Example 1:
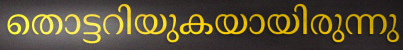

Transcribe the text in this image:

തൊട്ടറിയുകയായിരുന്നു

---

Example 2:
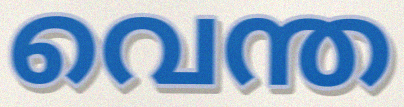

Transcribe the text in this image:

വെന്ത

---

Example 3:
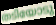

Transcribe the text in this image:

തടിയോടു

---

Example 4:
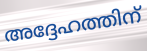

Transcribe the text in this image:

അദ്ദേഹത്തിന്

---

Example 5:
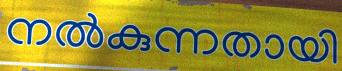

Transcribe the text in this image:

നൽകുന്നതായി